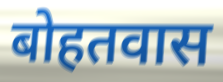
बोहतवास